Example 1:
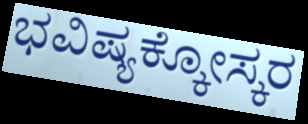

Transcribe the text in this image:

ಭವಿಷ್ಯಕ್ಕೋಸ್ಕರ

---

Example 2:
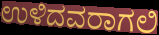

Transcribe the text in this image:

ಉಳಿದವರಾಗಲಿ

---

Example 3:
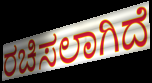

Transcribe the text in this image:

ರಚಿಸಲಾಗಿದೆ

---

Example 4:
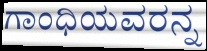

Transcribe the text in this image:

ಗಾಂಧಿಯವರನ್ನ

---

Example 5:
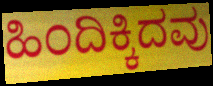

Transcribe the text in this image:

ಹಿಂದಿಕ್ಕಿದವು